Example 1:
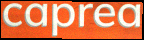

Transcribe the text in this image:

caprea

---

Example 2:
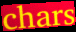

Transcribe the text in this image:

chars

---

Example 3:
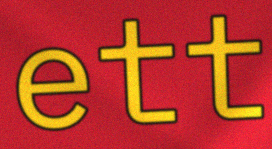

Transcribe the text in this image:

ett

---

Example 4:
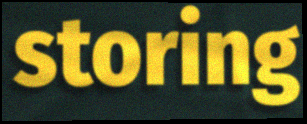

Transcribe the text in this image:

storing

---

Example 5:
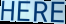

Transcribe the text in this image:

HERE